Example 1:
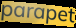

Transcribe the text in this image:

parapet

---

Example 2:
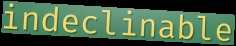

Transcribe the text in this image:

indeclinable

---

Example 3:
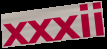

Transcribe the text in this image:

xxxii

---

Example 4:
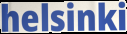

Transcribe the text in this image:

helsinki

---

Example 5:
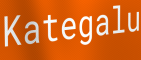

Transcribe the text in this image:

Kategalu